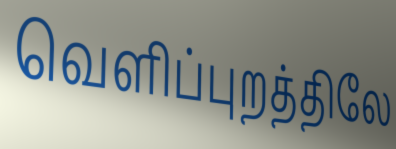
வெளிப்புறத்திலே